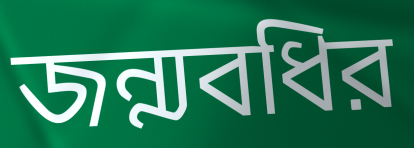
জন্মবধির